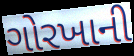
ગોરખાની